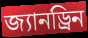
জ্যানড্রিন